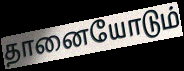
தானையோடும்